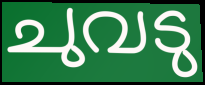
ചുവടു